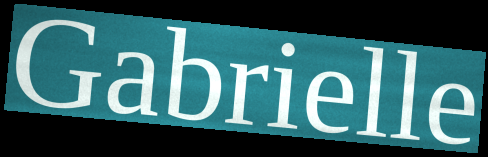
Gabrielle